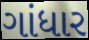
ગાંધાર